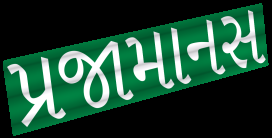
પ્રજામાનસ